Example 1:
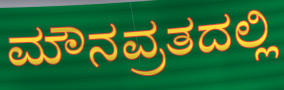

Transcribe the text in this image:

ಮೌನವ್ರತದಲ್ಲಿ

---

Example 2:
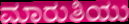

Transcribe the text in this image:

ಮಾರುತಿಯು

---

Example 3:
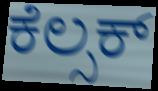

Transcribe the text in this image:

ಕೆಲ್ಸಕ್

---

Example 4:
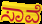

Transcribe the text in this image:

ಸಾವೆ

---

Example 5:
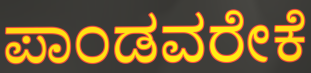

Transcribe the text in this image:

ಪಾಂಡವರೇಕೆ